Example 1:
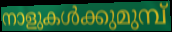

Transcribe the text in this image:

നാളുകൾക്കുമുമ്പ്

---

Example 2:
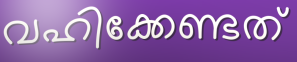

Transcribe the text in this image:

വഹിക്കേണ്ടത്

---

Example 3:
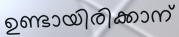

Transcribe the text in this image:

ഉണ്ടായിരിക്കാന്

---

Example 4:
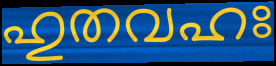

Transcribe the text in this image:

ഹുതവഹഃ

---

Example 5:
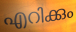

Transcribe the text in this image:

എറിക്കും